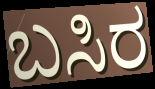
ಬಸಿರ